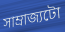
সাম্ৰাজ্যটো